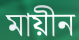
মায়ীন